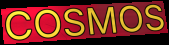
COSMOS